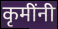
कृमींनी